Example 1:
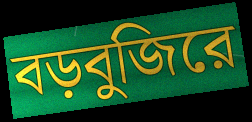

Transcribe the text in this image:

বড়বুজিরে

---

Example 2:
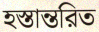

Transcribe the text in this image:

হস্তান্তরিত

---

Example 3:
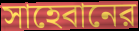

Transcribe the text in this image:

সাহেবানের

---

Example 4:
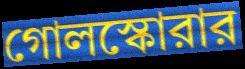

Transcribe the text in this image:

গোলস্কোরার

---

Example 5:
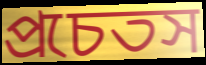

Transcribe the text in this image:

প্রচেতস